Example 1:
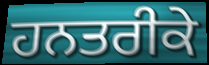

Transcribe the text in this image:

ਹਨਤਰੀਕੇ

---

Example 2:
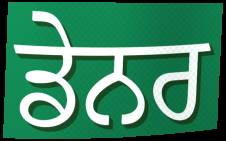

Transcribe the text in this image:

ਡੇਨਰ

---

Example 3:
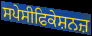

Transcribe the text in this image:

ਸਪੇਸੀਫਿਕੇਸ਼ਨਜ਼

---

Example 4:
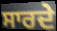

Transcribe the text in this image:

ਸਾਰਦੇ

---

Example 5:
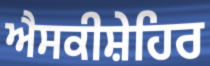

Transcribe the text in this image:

ਐਸਕੀਸ਼ੇਹਿਰ